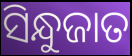
ସିନ୍ଧୁଜାତ